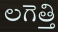
లగెత్తి